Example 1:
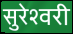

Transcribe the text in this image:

सुरेश्वरी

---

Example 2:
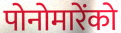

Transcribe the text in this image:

पोनोमारेंको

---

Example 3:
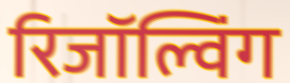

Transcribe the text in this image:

रिजॉल्विंग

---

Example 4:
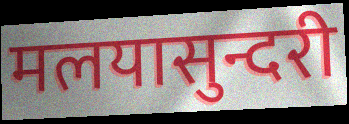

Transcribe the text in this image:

मलयासुन्दरी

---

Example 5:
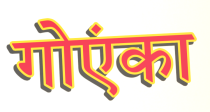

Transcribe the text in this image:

गोएंका